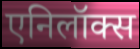
एनिलॉक्स